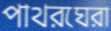
পাথরঘেরা